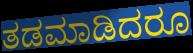
ತಡಮಾಡಿದರೂ